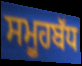
ਸਮੂਹਬੱਧ